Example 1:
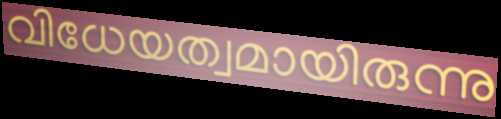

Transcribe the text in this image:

വിധേയത്വമായിരുന്നു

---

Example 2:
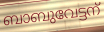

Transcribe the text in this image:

ബാബുവേട്ടന്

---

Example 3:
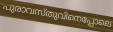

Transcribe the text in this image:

പുരാവസ്തുവിനെപ്പോലെ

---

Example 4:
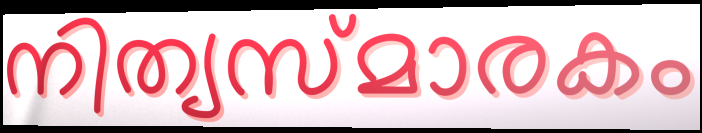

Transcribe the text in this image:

നിത്യസ്മാരകം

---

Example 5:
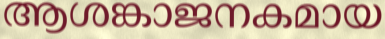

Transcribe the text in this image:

ആശങ്കാജനകമായ